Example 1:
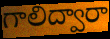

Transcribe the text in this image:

గాలిద్వారా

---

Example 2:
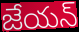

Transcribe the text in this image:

జేయన్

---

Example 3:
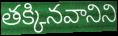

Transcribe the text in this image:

తక్కినవానిని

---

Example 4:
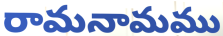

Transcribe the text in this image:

రామనామము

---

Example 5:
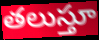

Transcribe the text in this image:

తలుస్తూ